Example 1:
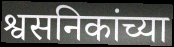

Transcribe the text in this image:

श्वसनिकांच्या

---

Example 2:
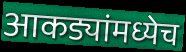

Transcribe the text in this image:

आकड्यांमध्येच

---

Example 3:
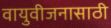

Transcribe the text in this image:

वायुवीजनासाठी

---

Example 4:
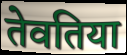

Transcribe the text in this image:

तेवतिया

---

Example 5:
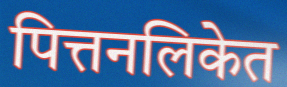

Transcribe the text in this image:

पित्तनलिकेत